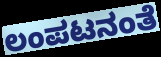
ಲಂಪಟನಂತೆ